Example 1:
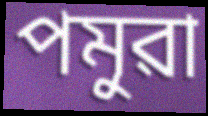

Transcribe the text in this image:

পমুৱা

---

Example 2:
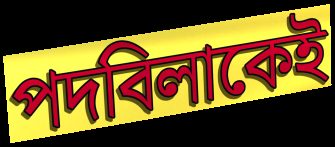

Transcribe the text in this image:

পদবিলাকেই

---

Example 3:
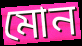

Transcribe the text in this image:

মোন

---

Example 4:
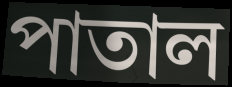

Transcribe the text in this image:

পাতাল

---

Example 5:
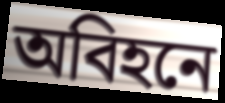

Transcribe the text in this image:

অবিহনে